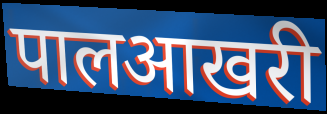
पालआखरी